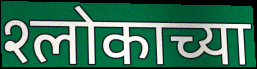
श्लोकाच्या